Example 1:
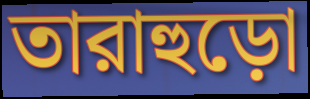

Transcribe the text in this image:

তারাহুড়ো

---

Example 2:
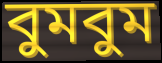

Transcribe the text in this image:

বুমবুম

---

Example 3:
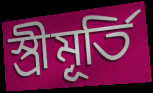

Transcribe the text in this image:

স্ত্রীমূর্তি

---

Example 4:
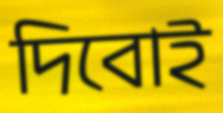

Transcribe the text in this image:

দিবোই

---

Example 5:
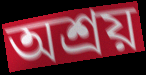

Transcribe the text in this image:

অশ্রয়